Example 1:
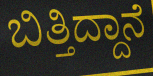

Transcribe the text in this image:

ಬಿತ್ತಿದ್ದಾನೆ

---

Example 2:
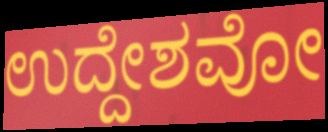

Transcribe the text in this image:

ಉದ್ದೇಶವೋ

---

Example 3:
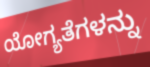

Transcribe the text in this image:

ಯೋಗ್ಯತೆಗಳನ್ನು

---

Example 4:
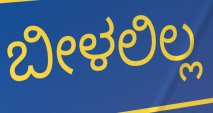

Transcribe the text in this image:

ಬೀಳಲಿಲ್ಲ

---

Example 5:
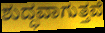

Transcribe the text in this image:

ಶುದ್ಧವಾಗುತ್ತವೆ